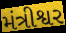
મંત્રીશ્વર